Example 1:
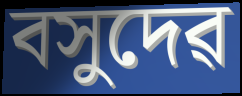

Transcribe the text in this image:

বসুদেৱ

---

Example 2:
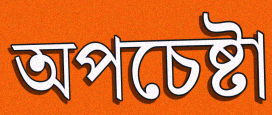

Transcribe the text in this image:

অপচেষ্টা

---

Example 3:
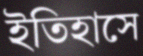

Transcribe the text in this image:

ইতিহাসে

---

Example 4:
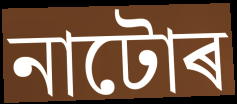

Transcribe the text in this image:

নাটোৰ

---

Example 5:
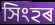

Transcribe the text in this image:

সিংহৰ